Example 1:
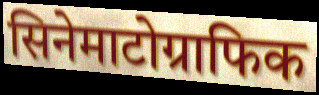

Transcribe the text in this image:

सिनेमाटोग्राफिक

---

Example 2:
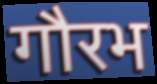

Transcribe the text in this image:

गौरभ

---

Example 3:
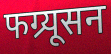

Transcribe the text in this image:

फग्र्यूसन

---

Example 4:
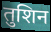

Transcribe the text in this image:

तुशिन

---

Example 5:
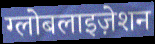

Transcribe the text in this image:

ग्लोबलाइज़ेशन